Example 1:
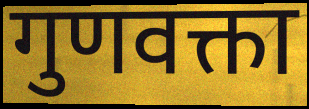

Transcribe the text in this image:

गुणवक्ता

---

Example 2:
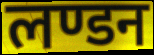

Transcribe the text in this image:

लण्डन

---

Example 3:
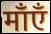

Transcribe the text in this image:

माँएँ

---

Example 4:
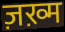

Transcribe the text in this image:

ज़ख़्म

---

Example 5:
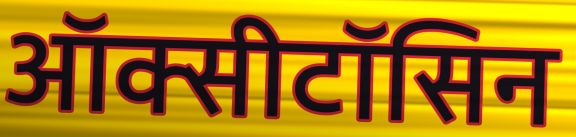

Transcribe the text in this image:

ऑक्सीटॉसिन